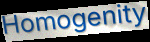
Homogenity